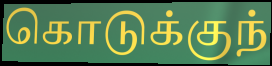
கொடுக்குந்